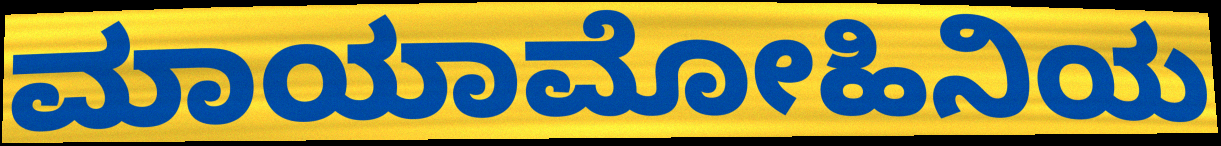
ಮಾಯಾಮೋಹಿನಿಯ